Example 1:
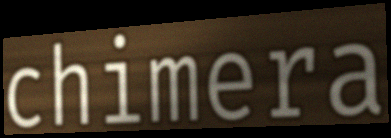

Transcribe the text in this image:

chimera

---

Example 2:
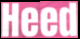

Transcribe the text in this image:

Heed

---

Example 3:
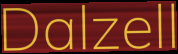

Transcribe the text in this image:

Dalzell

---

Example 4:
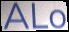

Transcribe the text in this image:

ALo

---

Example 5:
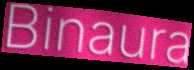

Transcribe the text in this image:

Binaura